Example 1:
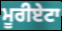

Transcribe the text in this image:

ਮੂਰੀਏਟਾ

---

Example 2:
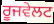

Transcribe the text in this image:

ਰੂਜਵੇਲਟ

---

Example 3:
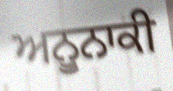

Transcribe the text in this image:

ਅਨੂਨਾਕੀ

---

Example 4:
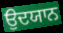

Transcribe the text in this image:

ਉਦਯਾਨ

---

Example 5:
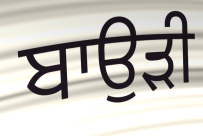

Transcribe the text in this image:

ਬਾਉੜੀ